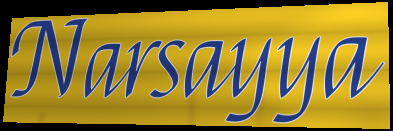
Narsayya